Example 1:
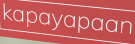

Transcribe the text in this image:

kapayapaan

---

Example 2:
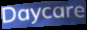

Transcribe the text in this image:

Daycare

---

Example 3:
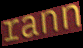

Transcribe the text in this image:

rann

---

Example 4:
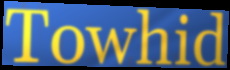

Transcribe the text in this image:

Towhid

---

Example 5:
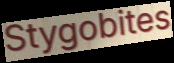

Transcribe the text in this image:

Stygobites